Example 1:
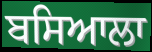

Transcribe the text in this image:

ਬਸਿਆਲਾ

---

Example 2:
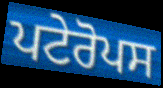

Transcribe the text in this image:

ਪਟੇਰੋਪਸ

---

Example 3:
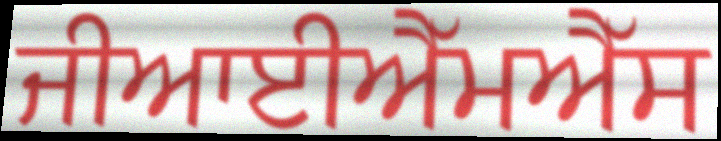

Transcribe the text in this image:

ਜੀਆਈਐੱਮਐੱਸ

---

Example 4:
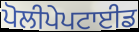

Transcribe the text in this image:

ਪੋਲੀਪੇਪਟਾਈਡ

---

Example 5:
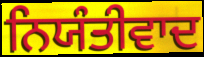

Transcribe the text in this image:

ਨਿਯੰਤੀਵਾਦ